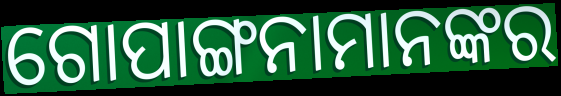
ଗୋପାଙ୍ଗନାମାନଙ୍କର